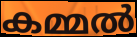
കമ്മൽ